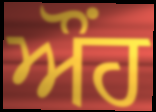
ਔਂਹ